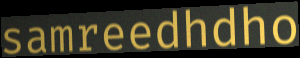
samreedhdho